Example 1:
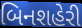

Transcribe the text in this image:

બિનશહેરી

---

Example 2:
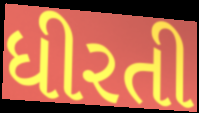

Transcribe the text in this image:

ધીરતી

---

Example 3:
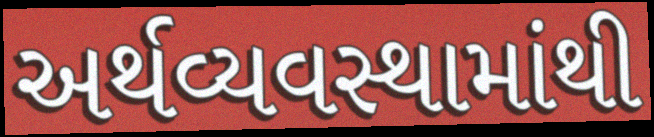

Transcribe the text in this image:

અર્થવ્યવસ્થામાંથી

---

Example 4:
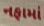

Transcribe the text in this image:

નફામાં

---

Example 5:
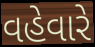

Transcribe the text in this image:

વહેવારે